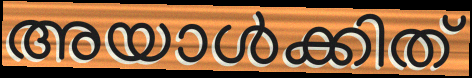
അയാൾക്കിത്